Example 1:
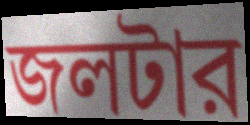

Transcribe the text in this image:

জলটার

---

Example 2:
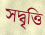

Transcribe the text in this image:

সদ্বৃত্তি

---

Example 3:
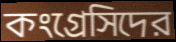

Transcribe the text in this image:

কংগ্রেসিদের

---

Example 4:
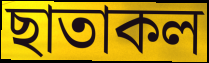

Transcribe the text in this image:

ছাতাকল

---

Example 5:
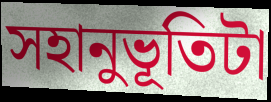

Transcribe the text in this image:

সহানুভূতিটা